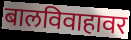
बालविवाहावर